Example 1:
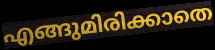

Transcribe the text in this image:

എങ്ങുമിരിക്കാതെ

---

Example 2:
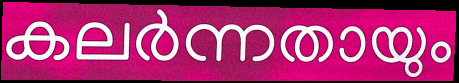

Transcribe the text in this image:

കലർന്നതായും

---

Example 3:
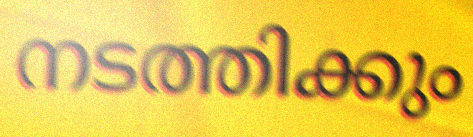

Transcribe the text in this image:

നടത്തിക്കും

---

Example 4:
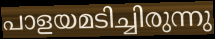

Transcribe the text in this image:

പാളയമടിച്ചിരുന്നു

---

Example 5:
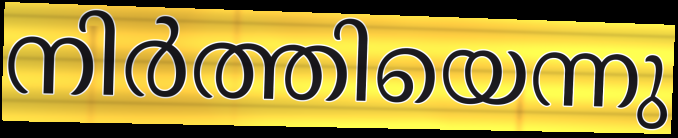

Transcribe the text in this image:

നിർത്തിയെന്നു